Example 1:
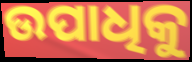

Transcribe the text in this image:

ଉପାଧିକୁ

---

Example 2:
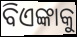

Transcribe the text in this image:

ବିଏଙ୍କାକୁ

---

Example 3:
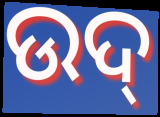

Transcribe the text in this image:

ଉଦ୍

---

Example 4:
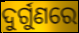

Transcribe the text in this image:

ଦୁର୍ଗୁଣରେ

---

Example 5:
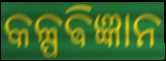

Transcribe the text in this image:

କଳ୍ପଵିଜ୍ଞାନ